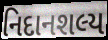
નિદાનશલ્ય